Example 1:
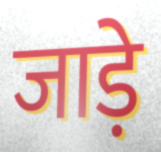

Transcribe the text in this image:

जाड़े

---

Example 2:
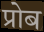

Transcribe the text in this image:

प्रोब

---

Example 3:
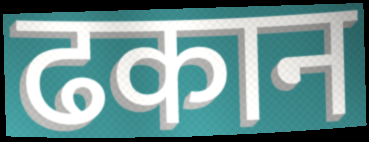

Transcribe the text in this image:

ढकान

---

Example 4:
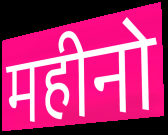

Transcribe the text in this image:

महीनो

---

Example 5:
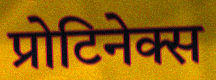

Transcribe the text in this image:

प्रोटिनेक्स